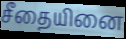
சீதையினை